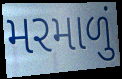
મરમાળું